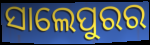
ସାଲେପୁରର